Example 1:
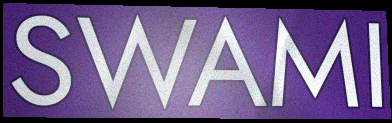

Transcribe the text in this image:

SWAMI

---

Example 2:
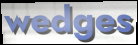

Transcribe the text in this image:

wedges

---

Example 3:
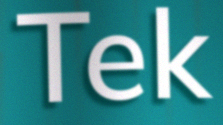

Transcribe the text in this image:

Tek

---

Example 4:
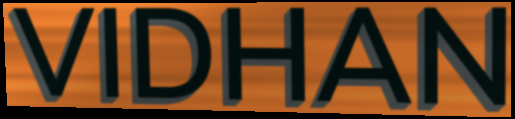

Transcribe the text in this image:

VIDHAN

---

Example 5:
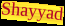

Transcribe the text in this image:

Shayyad